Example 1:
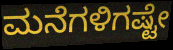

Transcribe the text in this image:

ಮನೆಗಳಿಗಷ್ಟೇ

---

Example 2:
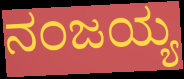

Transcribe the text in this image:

ನಂಜಯ್ಯ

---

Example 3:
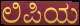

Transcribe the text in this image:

ಲಿಪಿಯ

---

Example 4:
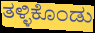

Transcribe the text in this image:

ತಳ್ಳಿಕೊಂಡು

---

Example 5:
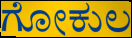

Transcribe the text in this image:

ಗೋಕುಲ